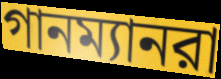
গানম্যানরা